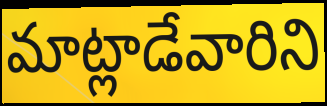
మాట్లాడేవారిని